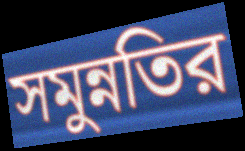
সমুন্নতির